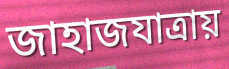
জাহাজযাত্রায়